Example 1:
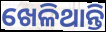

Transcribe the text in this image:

ଖେଳିଥାନ୍ତି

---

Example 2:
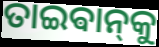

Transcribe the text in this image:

ତାଇଵାନ୍‌କୁ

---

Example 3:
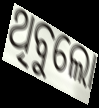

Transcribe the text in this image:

ଥିବୁଲୋ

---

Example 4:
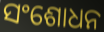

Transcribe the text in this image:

ସଂଶୋଧନ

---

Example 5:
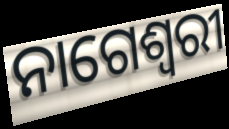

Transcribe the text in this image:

ନାଗେଶ୍ୱରୀ